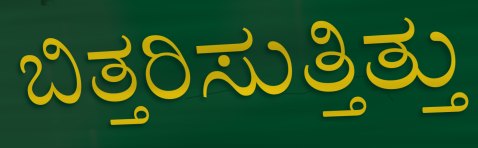
ಬಿತ್ತರಿಸುತ್ತಿತ್ತು